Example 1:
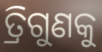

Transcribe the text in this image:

ତ୍ରିଗୁଣକୁ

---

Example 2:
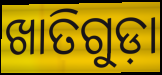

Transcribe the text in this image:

ଖାତିଗୁଡ଼ା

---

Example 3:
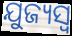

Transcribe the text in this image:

ଯୁଜ୍ୟସ୍ୱ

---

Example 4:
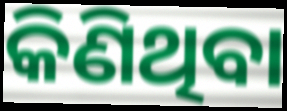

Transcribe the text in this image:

କିଣିଥିବା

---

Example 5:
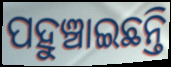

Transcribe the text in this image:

ପହୁଞ୍ଚାଇଛନ୍ତି